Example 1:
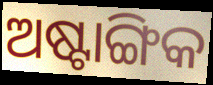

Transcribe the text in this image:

ଅଷ୍ଟାଙ୍ଗିକ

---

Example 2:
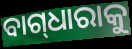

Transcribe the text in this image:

ବାଗ୍‌ଧାରାକୁ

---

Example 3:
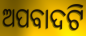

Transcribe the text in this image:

ଅପବାଦଟି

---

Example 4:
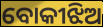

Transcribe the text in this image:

ବୋକୀଝିଅ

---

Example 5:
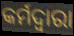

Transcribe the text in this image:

କର୍ମଦ୍ବାରା